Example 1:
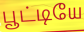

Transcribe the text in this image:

பூட்டியே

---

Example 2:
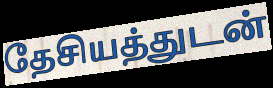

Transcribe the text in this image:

தேசியத்துடன்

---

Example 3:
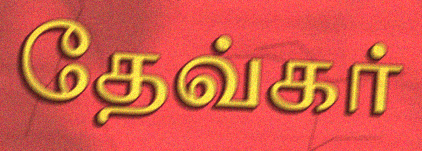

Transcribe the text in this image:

தேவ்கர்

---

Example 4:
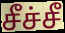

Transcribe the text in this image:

சீச்சீ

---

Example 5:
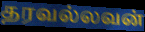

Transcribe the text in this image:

தரவல்லவன்